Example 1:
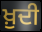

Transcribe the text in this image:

ਖ਼ੁਦੀ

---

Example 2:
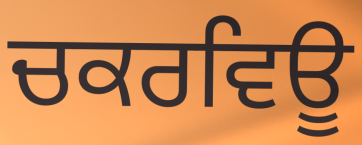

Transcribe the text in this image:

ਚਕਰਵਿਊ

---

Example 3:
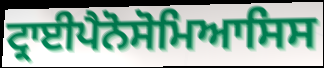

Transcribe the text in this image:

ਟ੍ਰਾਈਪੈਨੋਸੋਮਿਆਸਿਸ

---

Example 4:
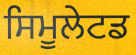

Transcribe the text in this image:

ਸਿਮੂਲੇਟਡ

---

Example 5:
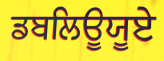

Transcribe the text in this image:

ਡਬਲਿਊਯੂਏ